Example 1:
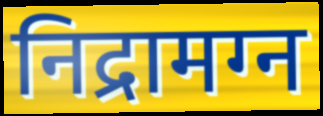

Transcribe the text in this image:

निद्रामग्न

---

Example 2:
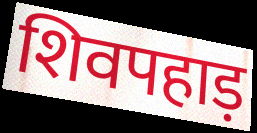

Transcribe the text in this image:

शिवपहाड़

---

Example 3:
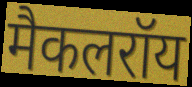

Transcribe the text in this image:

मैकलरॉय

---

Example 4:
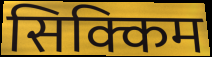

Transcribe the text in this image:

सिक्किम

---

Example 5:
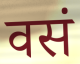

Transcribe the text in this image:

वसं